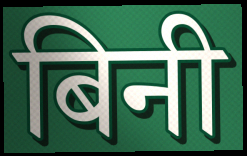
बिनी